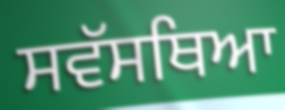
ਸਵੱਸਥਿਆ